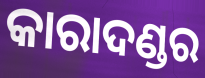
କାରାଦଣ୍ଡର